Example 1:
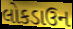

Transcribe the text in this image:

લોકડાઉન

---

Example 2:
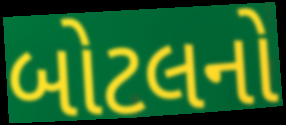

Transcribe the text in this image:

બોટલનો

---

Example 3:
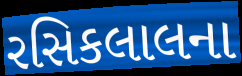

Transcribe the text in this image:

રસિકલાલના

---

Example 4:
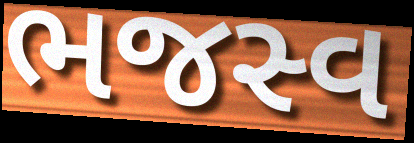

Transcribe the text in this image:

ભજસ્વ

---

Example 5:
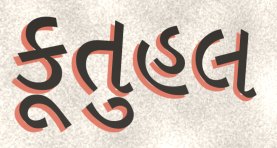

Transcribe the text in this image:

કૂતુહલ